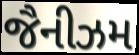
જૈનીઝમ